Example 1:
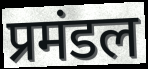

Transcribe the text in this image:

प्रमंडल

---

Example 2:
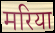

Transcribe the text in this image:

मरिया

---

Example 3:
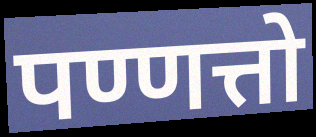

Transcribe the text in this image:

पण्णत्तो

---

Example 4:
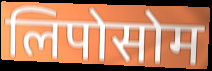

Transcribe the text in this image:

लिपोसोम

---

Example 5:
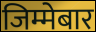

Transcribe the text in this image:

जिम्मेबार